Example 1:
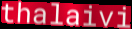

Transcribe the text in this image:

thalaivi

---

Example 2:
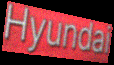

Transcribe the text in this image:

Hyundai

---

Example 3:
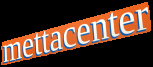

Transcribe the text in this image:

mettacenter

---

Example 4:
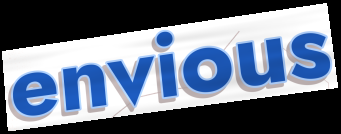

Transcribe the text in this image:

envious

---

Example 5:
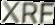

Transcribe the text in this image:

XRF